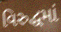
વિરુદ્ધમાં